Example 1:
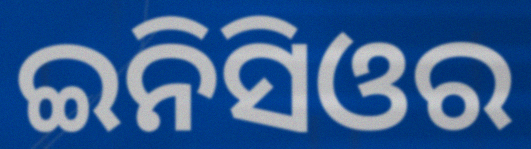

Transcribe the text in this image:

ଇନିସିଓର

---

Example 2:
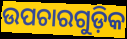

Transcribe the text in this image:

ଉପଚାରଗୁଡ଼ିକ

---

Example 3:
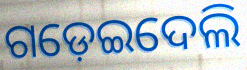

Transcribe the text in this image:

ଗଡ଼େଇଦେଲି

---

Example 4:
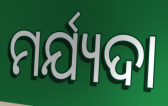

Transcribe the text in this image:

ମର୍ଯ୍ୟଦା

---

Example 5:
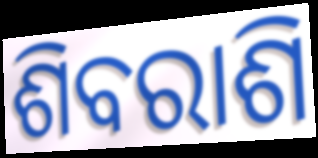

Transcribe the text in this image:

ଶିବରାଶି